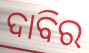
ଦାବିର